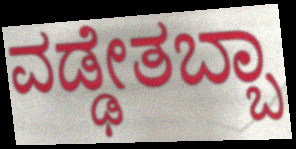
ವಡ್ಢೇತಬ್ಬಾ